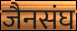
जैनसंघ